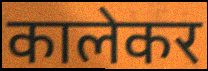
कालेकर